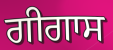
ਗੀਗਾਸ